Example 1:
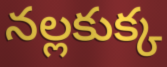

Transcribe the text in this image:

నల్లకుక్క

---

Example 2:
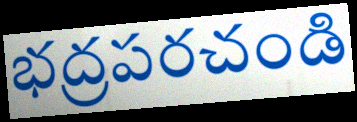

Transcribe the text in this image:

భద్రపరచండి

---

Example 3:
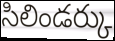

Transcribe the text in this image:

సిలిండర్కు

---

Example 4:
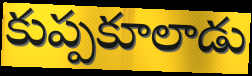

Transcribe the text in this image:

కుప్పకూలాడు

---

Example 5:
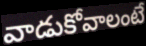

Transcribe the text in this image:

వాడుకోవాలంటే